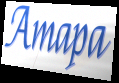
Amapa